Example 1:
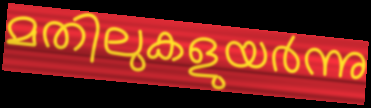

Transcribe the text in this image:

മതിലുകളുയർന്നു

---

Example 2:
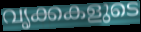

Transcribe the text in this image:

വൃക്കകളുടെ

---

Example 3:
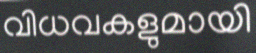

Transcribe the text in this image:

വിധവകളുമായി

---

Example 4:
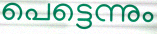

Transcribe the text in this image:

പെട്ടെന്നും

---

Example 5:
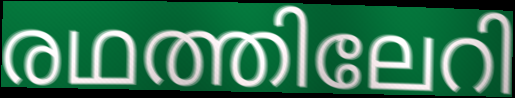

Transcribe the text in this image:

രഥത്തിലേറി